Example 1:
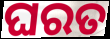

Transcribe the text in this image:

ଘରତ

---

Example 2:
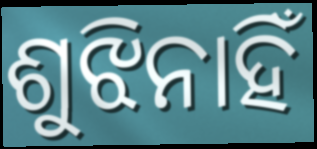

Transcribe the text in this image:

ଶୁଝିନାହିଁ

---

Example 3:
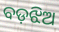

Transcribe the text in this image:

ବଡ଼ଝିଅ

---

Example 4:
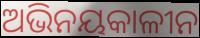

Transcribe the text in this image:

ଅଭିନୟକାଳୀନ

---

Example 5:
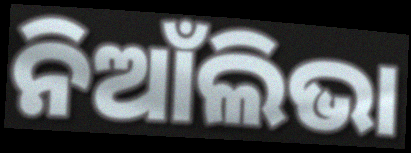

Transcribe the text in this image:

ନିଆଁଲିଭା